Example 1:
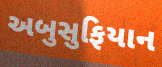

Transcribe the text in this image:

અબુસુફિયાન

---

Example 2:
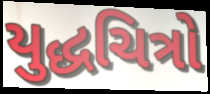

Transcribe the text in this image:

યુદ્ધચિત્રો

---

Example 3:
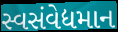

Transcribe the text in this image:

સ્વસંવેદ્યમાન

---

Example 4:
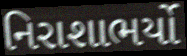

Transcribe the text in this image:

નિરાશાભર્યો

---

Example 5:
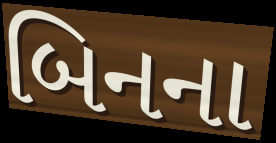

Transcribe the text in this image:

બિનના